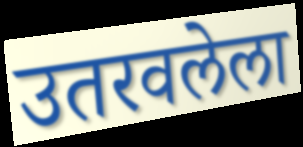
उतरवलेला